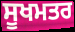
ਸੂਖਮਤਰ